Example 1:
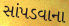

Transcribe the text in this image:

સાંપડવાના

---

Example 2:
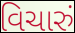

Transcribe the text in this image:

વિચારું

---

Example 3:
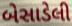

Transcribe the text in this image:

બેસાડેલી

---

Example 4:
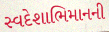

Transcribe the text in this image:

સ્વદેશાભિમાનની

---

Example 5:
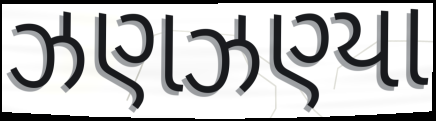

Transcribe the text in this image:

ઝણઝણ્યા